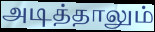
அடித்தாலும்